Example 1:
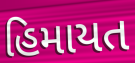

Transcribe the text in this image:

હિમાયત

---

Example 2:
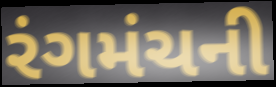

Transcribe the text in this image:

રંગમંચની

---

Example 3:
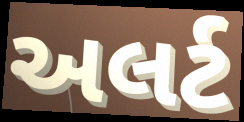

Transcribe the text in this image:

અલર્ટ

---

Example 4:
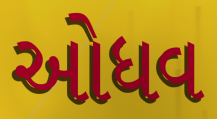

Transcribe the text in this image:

ઓધવ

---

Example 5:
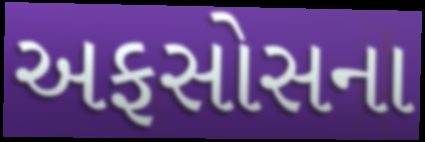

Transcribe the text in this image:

અફસોસના